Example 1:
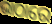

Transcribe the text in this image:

ଭାଠାରେ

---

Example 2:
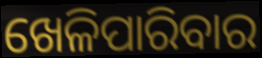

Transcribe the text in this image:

ଖେଳିପାରିବାର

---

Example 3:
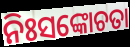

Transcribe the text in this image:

ନିଃସଙ୍କୋଚତା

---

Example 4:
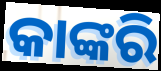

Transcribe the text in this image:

କାଙ୍କରି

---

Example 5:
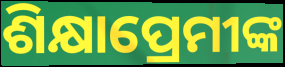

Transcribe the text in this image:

ଶିକ୍ଷାପ୍ରେମୀଙ୍କ